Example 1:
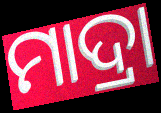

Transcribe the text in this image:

ମାଦ୍ରା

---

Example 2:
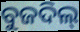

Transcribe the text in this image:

ବୁଜଦିଲ୍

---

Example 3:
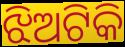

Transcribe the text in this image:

ଝିଅଟିକି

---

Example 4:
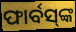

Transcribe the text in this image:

ଫାର୍ବସ୍‌ଙ୍କ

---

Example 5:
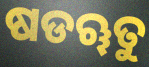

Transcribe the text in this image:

ଷଡୠତୁ